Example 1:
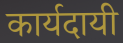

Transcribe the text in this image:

कार्यदायी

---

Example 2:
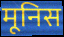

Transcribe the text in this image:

मूनिस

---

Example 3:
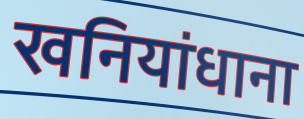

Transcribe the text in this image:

खनियांधाना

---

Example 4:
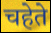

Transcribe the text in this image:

चहेते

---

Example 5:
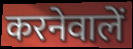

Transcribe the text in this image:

करनेवालें